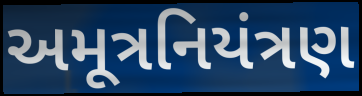
અમૂત્રનિયંત્રણ